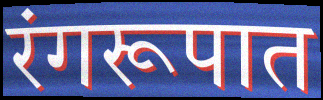
रंगरूपात